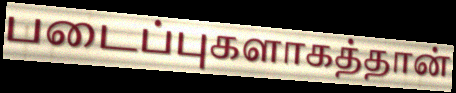
படைப்புகளாகத்தான்